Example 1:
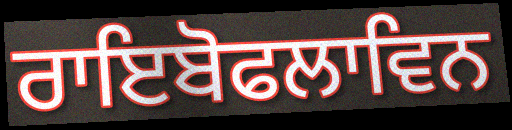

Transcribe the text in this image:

ਰਾਇਬੋਫਲਾਵਿਨ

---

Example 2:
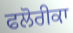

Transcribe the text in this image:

ਫਲੋਰੀਕਾ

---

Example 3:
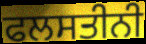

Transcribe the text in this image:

ਫਲਸਤੀਨੀ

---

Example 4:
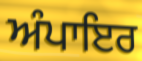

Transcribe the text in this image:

ਅੰਪਾਇਰ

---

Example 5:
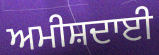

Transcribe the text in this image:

ਅਮੀਸ਼ਦਾਈ